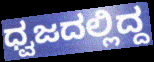
ಧ್ವಜದಲ್ಲಿದ್ದ